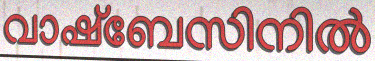
വാഷ്ബേസിനിൽ